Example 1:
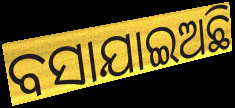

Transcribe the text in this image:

ବସାଯାଇଅଛି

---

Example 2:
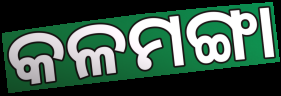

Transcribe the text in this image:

କଳମଙ୍ଗା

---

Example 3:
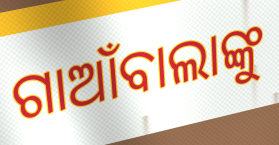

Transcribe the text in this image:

ଗାଆଁବାଲାଙ୍କୁ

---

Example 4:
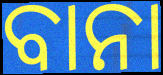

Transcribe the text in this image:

ବାନା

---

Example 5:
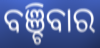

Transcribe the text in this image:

ବଞ୍ଚିବାର